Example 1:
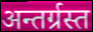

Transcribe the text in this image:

अन्तर्ग्रस्त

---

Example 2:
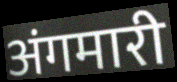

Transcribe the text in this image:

अंगमारी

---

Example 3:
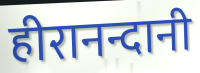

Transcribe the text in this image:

हीरानन्दानी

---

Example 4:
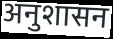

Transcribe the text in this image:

अनुशासन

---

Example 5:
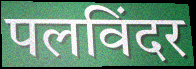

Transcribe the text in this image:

पलविंदर